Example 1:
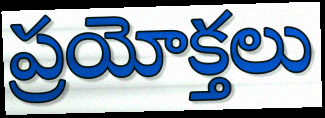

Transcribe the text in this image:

ప్రయోక్తలు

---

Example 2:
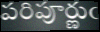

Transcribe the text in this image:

పరిపూర్ణుఁ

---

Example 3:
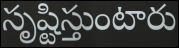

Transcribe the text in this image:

సృష్టిస్తుంటారు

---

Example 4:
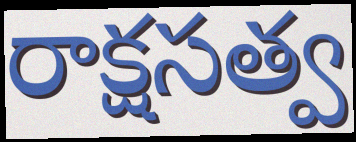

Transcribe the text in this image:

రాక్షసత్వ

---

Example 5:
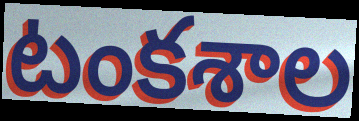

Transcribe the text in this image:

టంకశాల